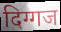
दिग्गज